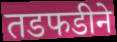
तडफडीने